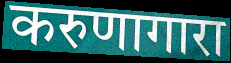
करुणागारा